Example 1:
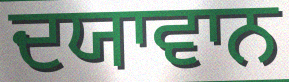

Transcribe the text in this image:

ਦਯਾਵਾਨ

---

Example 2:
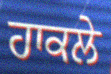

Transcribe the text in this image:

ਹਾਕਲੇ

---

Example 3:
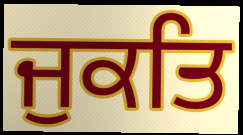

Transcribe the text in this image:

ਜੁਕਤਿ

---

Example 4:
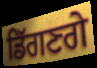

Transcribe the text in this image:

ਡਿੱਗਣਗੇ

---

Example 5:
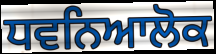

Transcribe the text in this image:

ਧਵਨਿਆਲੋਕ